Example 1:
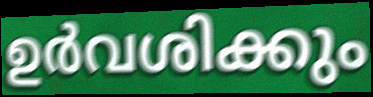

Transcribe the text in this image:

ഉർവശിക്കും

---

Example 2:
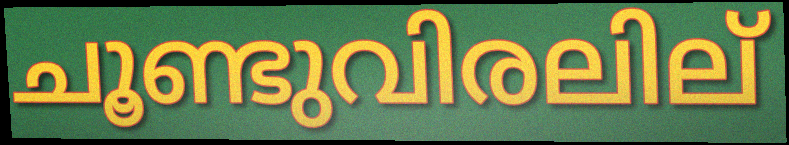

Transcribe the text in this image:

ചൂണ്ടുവിരലില്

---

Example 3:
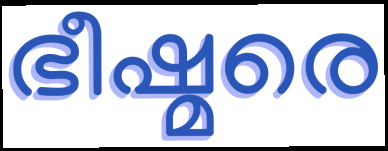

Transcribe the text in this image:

ഭീഷ്മരെ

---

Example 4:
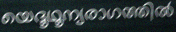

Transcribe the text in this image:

യെദൂഥൂന്യരാഗത്തിൽ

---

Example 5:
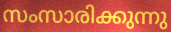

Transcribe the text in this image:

സംസാരിക്കുന്നു